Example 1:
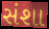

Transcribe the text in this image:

સંશા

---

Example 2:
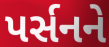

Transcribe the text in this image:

પર્સનને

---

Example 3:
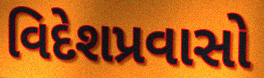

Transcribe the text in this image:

વિદેશપ્રવાસો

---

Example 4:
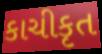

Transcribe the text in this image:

કાચીકૃત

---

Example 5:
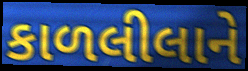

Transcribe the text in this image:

કાળલીલાને